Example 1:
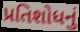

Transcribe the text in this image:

પ્રતિશોધનું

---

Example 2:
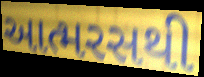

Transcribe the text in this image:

આત્મરસથી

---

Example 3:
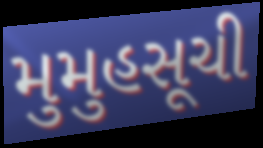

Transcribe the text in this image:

મુમુહસૂચી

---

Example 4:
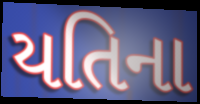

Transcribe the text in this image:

યતિના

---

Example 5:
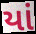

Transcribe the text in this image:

યાં